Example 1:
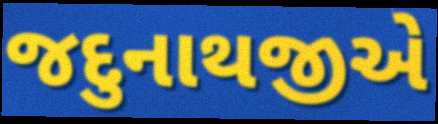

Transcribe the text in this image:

જદુનાથજીએ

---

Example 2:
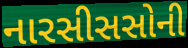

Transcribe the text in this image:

નારસીસસોની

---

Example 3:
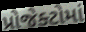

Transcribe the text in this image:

પ્રોજેક્ટોમાં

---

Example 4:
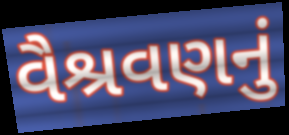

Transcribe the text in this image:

વૈશ્રવણનું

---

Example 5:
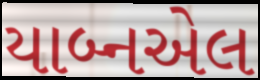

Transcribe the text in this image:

યાબ્નએલ